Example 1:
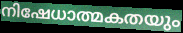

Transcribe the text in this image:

നിഷേധാത്മകതയും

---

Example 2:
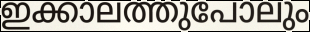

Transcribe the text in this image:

ഇക്കാലത്തുപോലും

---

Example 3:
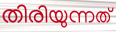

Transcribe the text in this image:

തിരിയുന്നത്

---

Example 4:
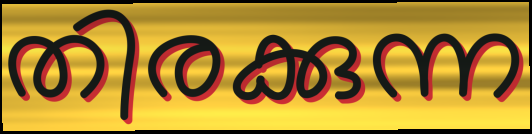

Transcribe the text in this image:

തിരക്കുന്ന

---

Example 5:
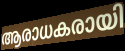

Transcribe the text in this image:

ആരാധകരായി